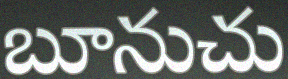
బూనుచు